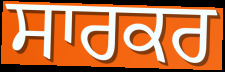
ਸਾਰਕਰ